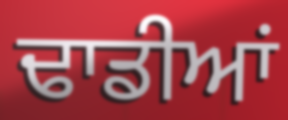
ਢਾਡੀਆਂ